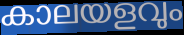
കാലയളവും